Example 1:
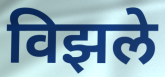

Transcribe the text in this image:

विझले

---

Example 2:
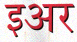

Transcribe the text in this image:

इअर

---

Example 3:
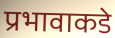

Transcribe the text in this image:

प्रभावाकडे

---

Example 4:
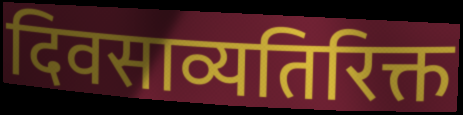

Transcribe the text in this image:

दिवसाव्यतिरिक्त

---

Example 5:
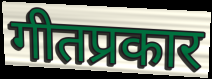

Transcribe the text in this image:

गीतप्रकार